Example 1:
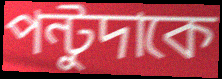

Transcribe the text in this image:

পন্টুদাকে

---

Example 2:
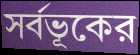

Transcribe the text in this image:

সর্বভূকের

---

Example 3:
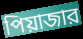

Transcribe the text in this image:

পিয়াজার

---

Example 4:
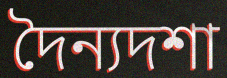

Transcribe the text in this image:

দৈন্যদশা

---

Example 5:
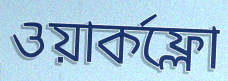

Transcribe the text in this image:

ওয়ার্কফ্লো